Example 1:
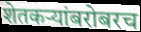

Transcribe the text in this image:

शेतकऱ्यांबरोबरच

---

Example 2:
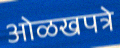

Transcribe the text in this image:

ओळखपत्रे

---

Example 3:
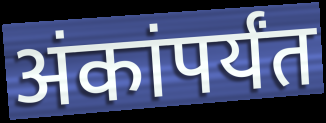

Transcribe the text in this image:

अंकांपर्यंत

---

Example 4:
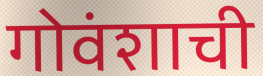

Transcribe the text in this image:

गोवंशाची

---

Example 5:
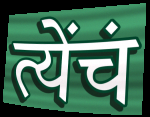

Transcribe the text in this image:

त्येंचं